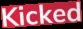
Kicked